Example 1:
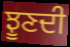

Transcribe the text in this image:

ਝੂਣਦੀ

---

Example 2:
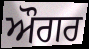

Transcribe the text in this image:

ਔਗਰ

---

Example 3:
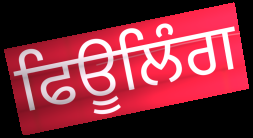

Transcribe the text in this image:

ਫਿਊਲਿੰਗ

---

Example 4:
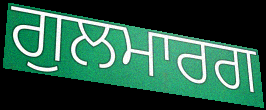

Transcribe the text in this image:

ਗੁਲਮਾਰਗ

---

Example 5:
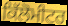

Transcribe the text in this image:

ਕਿੱਲੋਮੀਟਰ